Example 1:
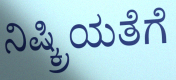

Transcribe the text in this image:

ನಿಷ್ಕ್ರಿಯತೆಗೆ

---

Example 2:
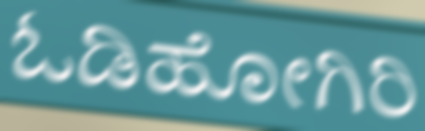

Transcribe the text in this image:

ಓಡಿಹೋಗಿರಿ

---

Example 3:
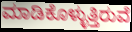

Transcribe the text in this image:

ಮಾಡಿಕೊಳ್ಳುತ್ತಿರುವೆ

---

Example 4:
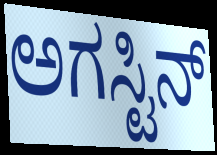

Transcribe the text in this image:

ಅಗಸ್ಟಿನ್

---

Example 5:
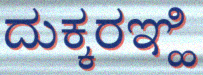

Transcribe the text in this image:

ದುಕ್ಕರಞ್ಹಿ